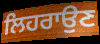
ਲਿਹਰਾਉਣ